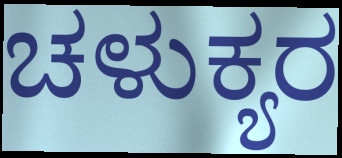
ಚಳುಕ್ಯರ